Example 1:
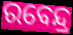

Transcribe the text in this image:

ରବେନ୍ଦ୍ର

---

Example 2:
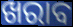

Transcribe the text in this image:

ଖରାବ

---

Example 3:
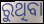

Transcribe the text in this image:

ରୁଥିବା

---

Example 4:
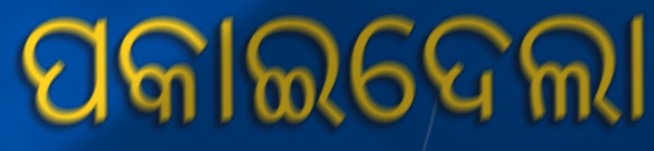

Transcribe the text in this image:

ପକାଇଦେଲା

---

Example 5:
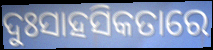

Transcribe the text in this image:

ଦୁଃସାହସିକତାରେ